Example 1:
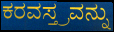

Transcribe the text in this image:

ಕರವಸ್ತ್ರವನ್ನು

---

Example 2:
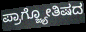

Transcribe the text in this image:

ಪ್ರಾಗ್ಜ್ಯೋತಿಷದ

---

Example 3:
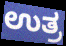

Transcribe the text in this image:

ಉತ್ರ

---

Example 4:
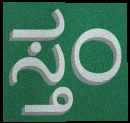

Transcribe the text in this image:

ಸ್ತಂ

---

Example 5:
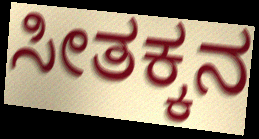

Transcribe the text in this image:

ಸೀತಕ್ಕನ